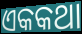
ଏକକଥା